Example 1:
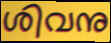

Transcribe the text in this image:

ശിവനു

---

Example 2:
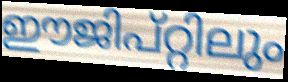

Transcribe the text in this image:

ഈജിപ്റ്റിലും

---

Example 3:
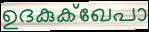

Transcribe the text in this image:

ഉദകുക്ഖേപാ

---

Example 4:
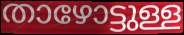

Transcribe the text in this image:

താഴോട്ടുള്ള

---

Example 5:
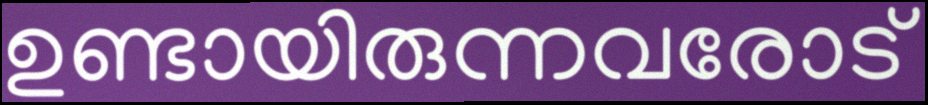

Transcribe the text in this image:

ഉണ്ടായിരുന്നവരോട്